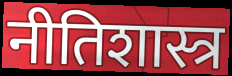
नीतिशास्त्र